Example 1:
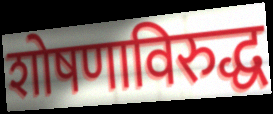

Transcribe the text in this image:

शोषणाविरुद्ध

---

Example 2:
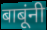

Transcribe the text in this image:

बाबूंनी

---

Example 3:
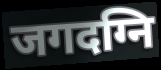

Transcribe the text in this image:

जगदग्नि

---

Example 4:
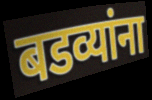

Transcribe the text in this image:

बडव्यांना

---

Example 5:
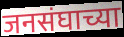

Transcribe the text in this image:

जनसंघाच्या